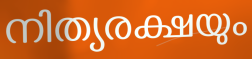
നിത്യരക്ഷയും